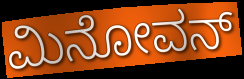
ಮಿನೋವನ್